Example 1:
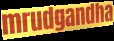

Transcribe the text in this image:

mrudgandha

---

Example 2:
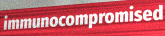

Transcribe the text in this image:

immunocompromised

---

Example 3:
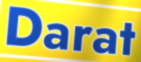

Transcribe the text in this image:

Darat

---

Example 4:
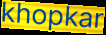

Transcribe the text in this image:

khopkar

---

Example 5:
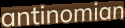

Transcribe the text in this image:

antinomian